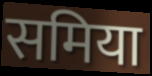
समिया